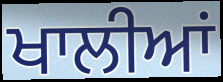
ਖਾਲੀਆਂ